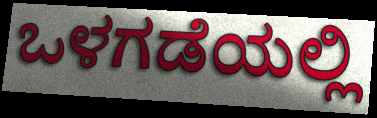
ಒಳಗಡೆಯಲ್ಲಿ